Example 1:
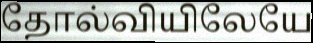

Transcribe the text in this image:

தோல்வியிலேயே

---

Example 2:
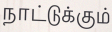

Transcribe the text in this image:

நாட்டுக்கும்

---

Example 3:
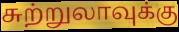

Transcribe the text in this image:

சுற்றுலாவுக்கு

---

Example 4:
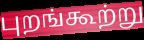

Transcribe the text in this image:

புறங்கூற்று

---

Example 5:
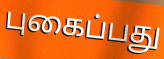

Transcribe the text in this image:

புகைப்பது